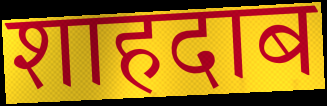
शाहदाब